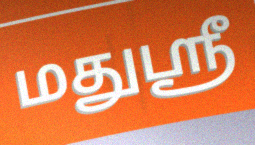
மதுஸ்ரீ